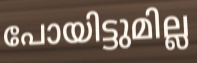
പോയിട്ടുമില്ല